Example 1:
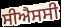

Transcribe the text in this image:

ਸੀਐਸਸੀ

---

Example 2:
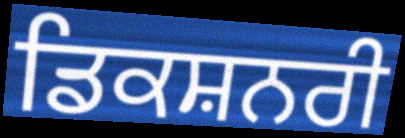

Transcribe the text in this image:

ਡਿਕਸ਼ਨਰੀ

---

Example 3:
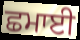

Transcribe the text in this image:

ਛਮਾਈ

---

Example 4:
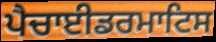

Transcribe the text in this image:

ਪੈਚਾਈਡਰਮਾਟਿਸ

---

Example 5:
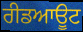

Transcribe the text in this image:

ਰੀਡਆਊਟ